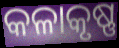
କଳାକୃଷ୍ଣ